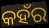
କହଁର